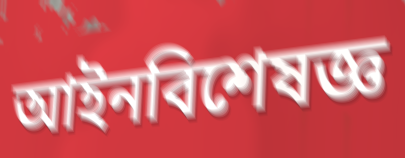
আইনবিশেষজ্ঞ